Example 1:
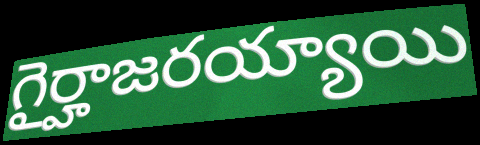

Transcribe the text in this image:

గైర్హాజరయ్యాయి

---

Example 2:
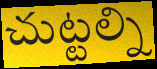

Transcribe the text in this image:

చుట్టల్ని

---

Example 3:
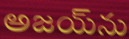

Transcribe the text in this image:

అజయ్‌ను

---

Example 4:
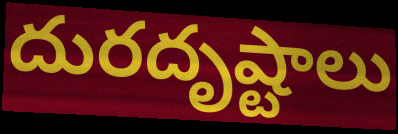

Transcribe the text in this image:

దురదృష్టాలు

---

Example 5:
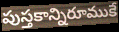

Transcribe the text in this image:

పుస్తకాన్నిరూముకే